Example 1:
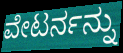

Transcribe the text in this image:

ವೇಟರ್ನನ್ನು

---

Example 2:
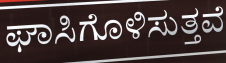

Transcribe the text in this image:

ಘಾಸಿಗೊಳಿಸುತ್ತವೆ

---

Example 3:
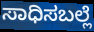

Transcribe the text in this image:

ಸಾಧಿಸಬಲ್ಲೆ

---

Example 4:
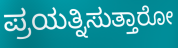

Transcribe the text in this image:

ಪ್ರಯತ್ನಿಸುತ್ತಾರೋ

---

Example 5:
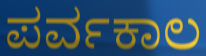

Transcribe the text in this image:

ಪರ್ವಕಾಲ